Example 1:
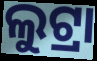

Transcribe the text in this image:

ଲୁଟ୍ରା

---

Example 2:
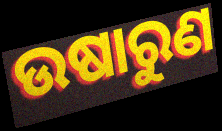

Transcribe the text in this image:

ଉଷାରୁଣ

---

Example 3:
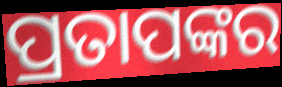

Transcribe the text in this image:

ପ୍ରତାପଙ୍କର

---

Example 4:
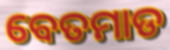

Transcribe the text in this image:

ବେତମାଡ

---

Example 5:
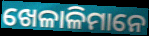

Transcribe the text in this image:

ଖେଳାଳିମାନେ